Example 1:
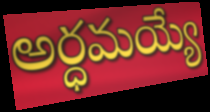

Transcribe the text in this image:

అర్ధమయ్యే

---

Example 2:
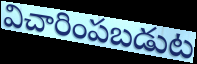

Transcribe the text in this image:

విచారింపబడుట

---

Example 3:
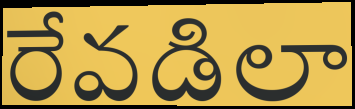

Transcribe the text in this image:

రేవడిలా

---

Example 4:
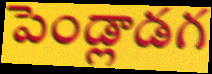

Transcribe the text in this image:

పెండ్లాడగ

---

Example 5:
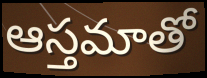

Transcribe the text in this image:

ఆస్తమాతో